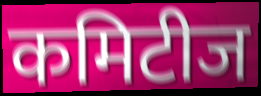
कमिटीज